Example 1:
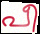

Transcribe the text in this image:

പീ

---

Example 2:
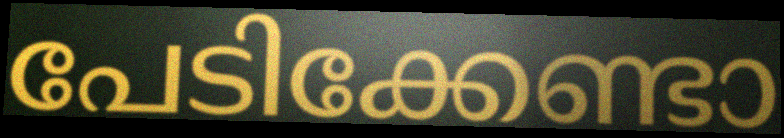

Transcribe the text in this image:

പേടിക്കേണ്ടാ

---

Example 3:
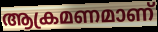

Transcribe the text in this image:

ആക്രമണമാണ്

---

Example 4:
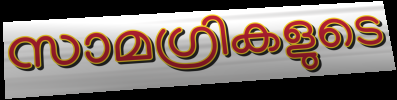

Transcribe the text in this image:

സാമഗ്രികളുടെ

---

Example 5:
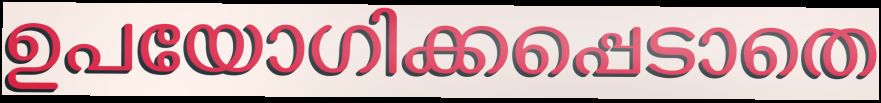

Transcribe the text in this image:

ഉപയോഗിക്കപ്പെടാതെ